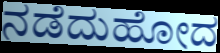
ನಡೆದುಹೋದ